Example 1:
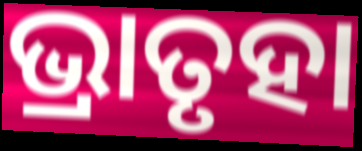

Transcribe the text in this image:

ଭ୍ରାତୃହା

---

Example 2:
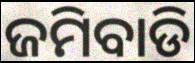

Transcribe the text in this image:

ଜମିବାଡି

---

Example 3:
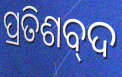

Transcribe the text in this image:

ପ୍ରତିଶବ୍‌ଦ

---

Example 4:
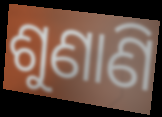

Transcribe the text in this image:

ଶୁଣାଣି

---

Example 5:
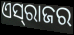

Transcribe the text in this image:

ଏସ୍‍ରାଜର